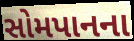
સોમપાનના